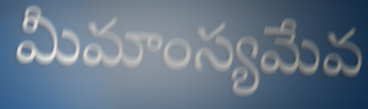
మీమాంస్యమేవ